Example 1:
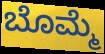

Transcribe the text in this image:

ಬೊಮ್ಮೆ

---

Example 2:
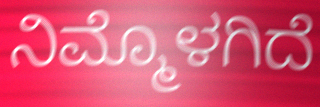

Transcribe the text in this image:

ನಿಮ್ಮೊಳಗಿದೆ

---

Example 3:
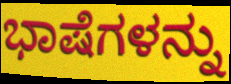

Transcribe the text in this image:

ಭಾಷೆಗಳನ್ನು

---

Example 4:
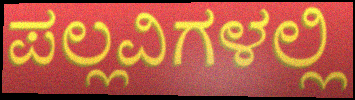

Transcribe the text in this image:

ಪಲ್ಲವಿಗಳಲ್ಲಿ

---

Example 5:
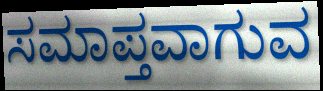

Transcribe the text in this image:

ಸಮಾಪ್ತವಾಗುವ